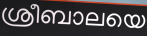
ശ്രീബാലയെ